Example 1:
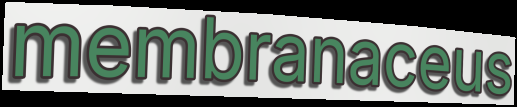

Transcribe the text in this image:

membranaceus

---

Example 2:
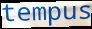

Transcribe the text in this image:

tempus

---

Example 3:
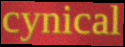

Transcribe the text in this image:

cynical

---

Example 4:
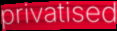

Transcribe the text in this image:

privatised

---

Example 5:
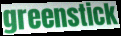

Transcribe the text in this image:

greenstick